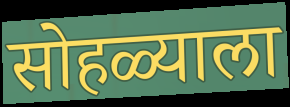
सोहळ्याला